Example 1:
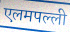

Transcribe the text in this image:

एलमपल्ली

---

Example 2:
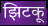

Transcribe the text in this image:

झिटकू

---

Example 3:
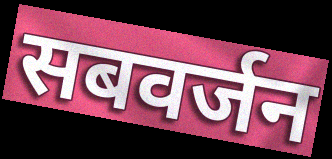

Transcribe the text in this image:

सबवर्जन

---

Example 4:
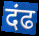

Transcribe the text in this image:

दंढ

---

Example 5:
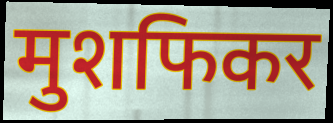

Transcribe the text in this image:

मुशफिकर